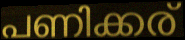
പണിക്കര്